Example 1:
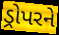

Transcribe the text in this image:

ડ્રોપરને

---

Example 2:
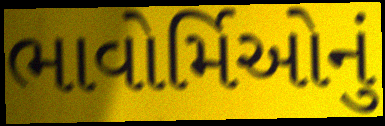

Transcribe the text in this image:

ભાવોર્મિઓનું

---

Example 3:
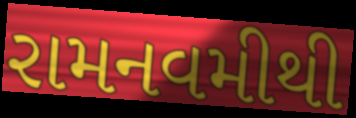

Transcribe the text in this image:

રામનવમીથી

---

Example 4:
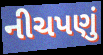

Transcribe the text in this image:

નીચપણું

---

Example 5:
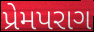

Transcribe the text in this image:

પ્રેમપરાગ